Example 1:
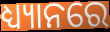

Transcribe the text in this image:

ଧ୍ୟ୍ୟାନରେ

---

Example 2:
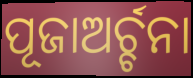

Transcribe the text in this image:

ପୂଜାଅର୍ଚ୍ଚନା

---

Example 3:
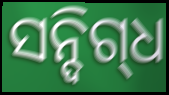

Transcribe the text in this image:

ସନ୍ଦିଗ୍‌ଧ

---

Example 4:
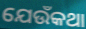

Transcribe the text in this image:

ଯେଉଁକଥା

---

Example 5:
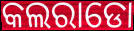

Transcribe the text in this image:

କଲରାଡୋ